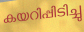
കയറിപ്പിടിച്ചു